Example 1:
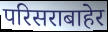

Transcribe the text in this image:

परिसराबाहेर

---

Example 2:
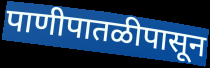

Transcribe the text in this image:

पाणीपातळीपासून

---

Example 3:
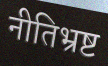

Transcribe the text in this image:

नीतिभ्रष्ट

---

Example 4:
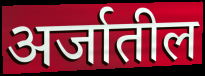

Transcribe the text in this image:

अर्जातील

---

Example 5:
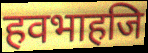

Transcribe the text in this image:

हवभाहजि